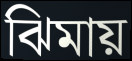
ঝিমায়